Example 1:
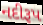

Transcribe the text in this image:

નદીરૂપ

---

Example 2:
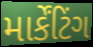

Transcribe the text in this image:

માર્કેંટિંગ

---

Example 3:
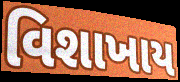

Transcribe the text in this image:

વિશાખાય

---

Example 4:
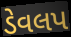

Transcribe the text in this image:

ડેવલપ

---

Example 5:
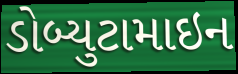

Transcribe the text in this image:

ડોબ્યુટામાઇન